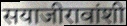
सयाजीरावांशी